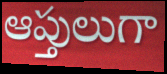
ఆప్తులుగా